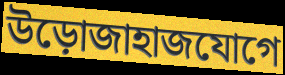
উড়োজাহাজযোগে